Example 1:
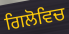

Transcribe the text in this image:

ਗਿਲੋਵਿਚ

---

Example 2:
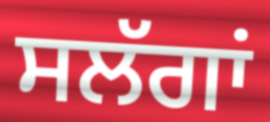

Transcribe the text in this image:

ਸਲੱਗਾਂ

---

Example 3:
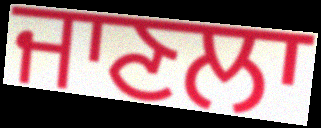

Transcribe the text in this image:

ਜਾਣਲਾ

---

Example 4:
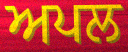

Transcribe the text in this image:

ਅਪਲ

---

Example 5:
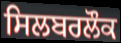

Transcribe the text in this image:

ਸਿਲਬਰਲੌਕ